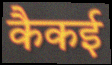
कैकई